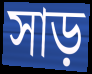
সাড়